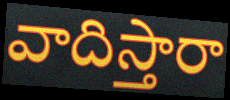
వాదిస్తారా